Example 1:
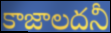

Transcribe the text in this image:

కాజాలదనీ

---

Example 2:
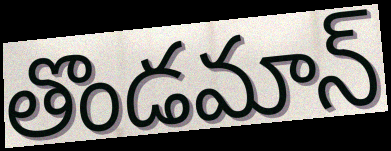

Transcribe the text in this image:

తొండమాన్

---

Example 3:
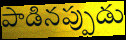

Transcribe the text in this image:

పాడినప్పుడు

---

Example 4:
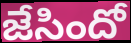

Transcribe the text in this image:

జేసిందో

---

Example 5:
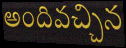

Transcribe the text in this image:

అందివచ్చిన